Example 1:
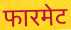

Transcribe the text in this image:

फारमेट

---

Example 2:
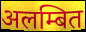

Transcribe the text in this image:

अलम्बित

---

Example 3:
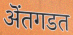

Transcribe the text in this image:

ऄंतगडत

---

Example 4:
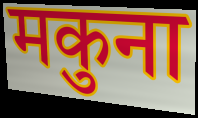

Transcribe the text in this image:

मकुना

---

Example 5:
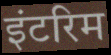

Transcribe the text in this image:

इंटरिम